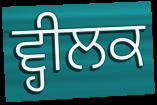
ਵ੍ਹੀਲਕ